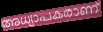
അധ്യാപകരാണ്